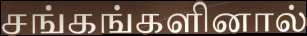
சங்கங்களினால்